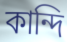
কান্দি